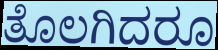
ತೊಲಗಿದರೂ